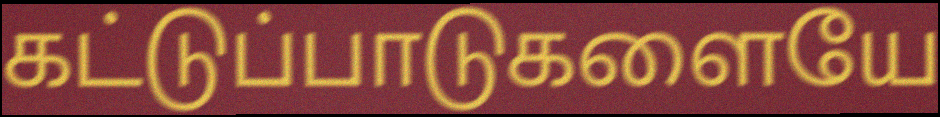
கட்டுப்பாடுகளையே